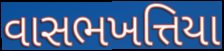
વાસભખત્તિયા